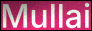
Mullai